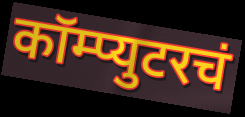
कॉम्प्युटरचं